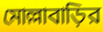
মোল্লাবাড়ির